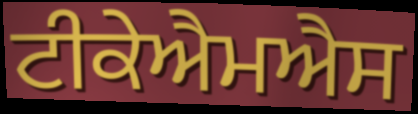
ਟੀਕੇਐਮਐਸ